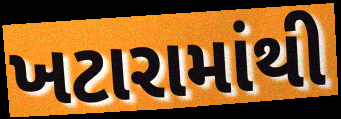
ખટારામાંથી